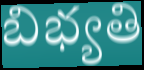
బిభ్యతి